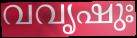
വവൃഷുഃ